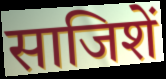
साजिशें